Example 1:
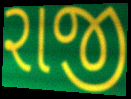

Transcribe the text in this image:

રાજી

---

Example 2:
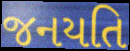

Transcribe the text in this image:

જનયતિ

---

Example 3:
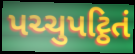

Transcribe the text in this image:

પચ્ચુપટ્ઠિતં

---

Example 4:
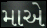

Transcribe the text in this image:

માએ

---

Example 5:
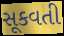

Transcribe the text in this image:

સૂકવતી